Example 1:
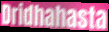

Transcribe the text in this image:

Dridhahasta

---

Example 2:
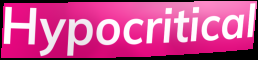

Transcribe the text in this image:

Hypocritical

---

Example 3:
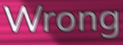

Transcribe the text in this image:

Wrong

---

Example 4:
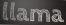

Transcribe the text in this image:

llama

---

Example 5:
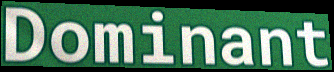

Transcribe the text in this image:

Dominant